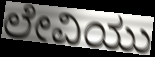
ಲೇವಿಯು